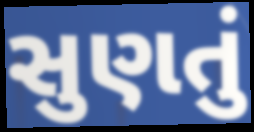
સુણતું